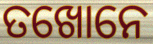
ତଖୋନେ